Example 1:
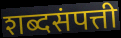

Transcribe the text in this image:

शब्दसंपत्ती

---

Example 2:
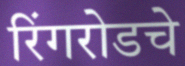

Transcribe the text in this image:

रिंगरोडचे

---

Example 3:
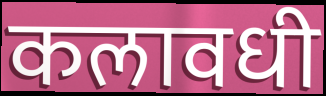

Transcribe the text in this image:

कलावधी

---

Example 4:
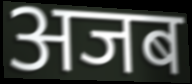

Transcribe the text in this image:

अजब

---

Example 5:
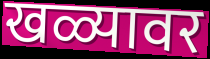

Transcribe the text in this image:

खळ्यावर